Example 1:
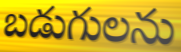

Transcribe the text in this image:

బడుగులను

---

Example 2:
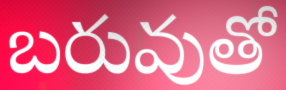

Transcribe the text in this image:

బరువుతో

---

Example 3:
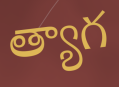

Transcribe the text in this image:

త్యాగ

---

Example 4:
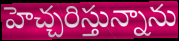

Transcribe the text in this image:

హెచ్చరిస్తున్నాను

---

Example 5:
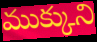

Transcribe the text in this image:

ముక్కుని